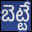
బెట్టే